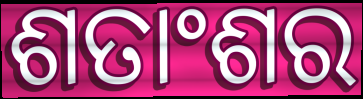
ଶତାଂଶର